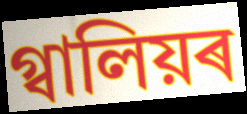
গ্বালিয়ৰ